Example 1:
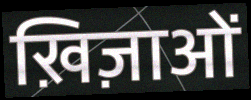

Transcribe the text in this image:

ख़िज़ाओं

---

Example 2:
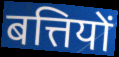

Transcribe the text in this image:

बत्तियों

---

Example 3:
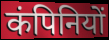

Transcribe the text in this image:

कंपिनियों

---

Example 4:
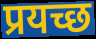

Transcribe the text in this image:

प्रयच्छ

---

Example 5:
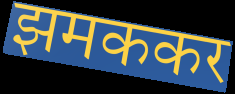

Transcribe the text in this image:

झमककर